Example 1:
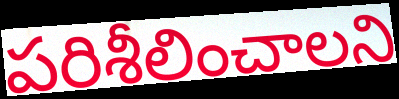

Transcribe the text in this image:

పరిశీలించాలని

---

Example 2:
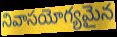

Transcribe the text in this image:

నివాసయోగ్యమైన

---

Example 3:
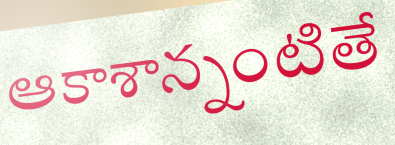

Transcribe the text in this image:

ఆకాశాన్నంటితే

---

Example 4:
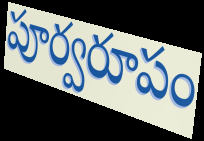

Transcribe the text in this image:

పూర్వరూపం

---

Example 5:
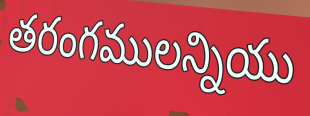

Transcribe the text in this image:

తరంగములన్నియు